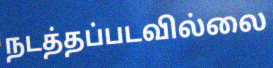
நடத்தப்படவில்லை